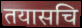
तयासचि